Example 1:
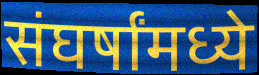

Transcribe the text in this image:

संघर्षांमध्ये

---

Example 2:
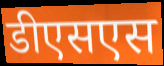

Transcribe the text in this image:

डीएसएस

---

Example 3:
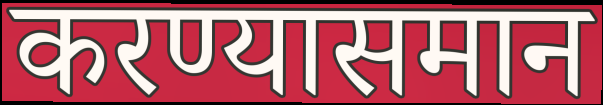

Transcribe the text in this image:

करण्यासमान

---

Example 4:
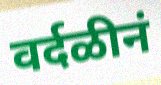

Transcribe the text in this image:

वर्दळीनं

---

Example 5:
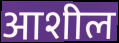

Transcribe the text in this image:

आशील